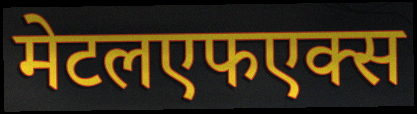
मेटलएफएक्स